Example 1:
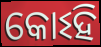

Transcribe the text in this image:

କୋଽହି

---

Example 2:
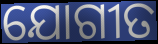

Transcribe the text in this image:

ଯୋଗୀତ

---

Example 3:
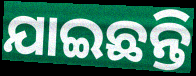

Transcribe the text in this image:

ଯାଇଛନ୍ତି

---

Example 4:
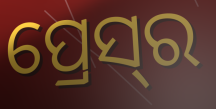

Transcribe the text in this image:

ପ୍ରେସ୍‌ର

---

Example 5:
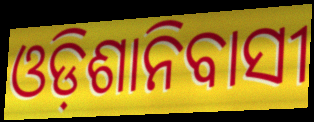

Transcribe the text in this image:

ଓଡ଼ିଶାନିବାସୀ